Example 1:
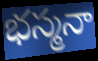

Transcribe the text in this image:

భస్మనా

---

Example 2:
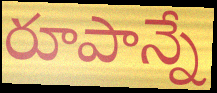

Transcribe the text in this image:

రూపాన్నే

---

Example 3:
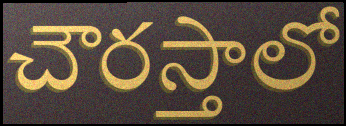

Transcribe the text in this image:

చౌరస్తాలో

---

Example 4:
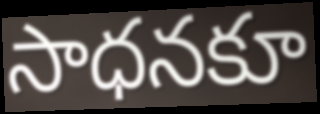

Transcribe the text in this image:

సాధనకూ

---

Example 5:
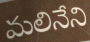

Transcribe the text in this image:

మలినేని